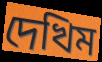
দেখিম